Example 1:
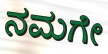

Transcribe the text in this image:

ನಮಗೇ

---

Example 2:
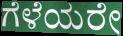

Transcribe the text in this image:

ಗೆಳೆಯರೇ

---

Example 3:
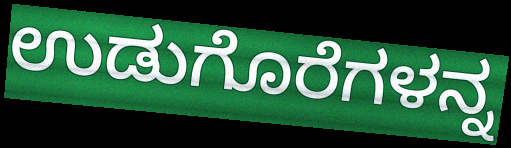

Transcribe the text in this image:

ಉಡುಗೊರೆಗಳನ್ನ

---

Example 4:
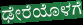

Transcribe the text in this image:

ಢೇರೆಯೊಳಗೆ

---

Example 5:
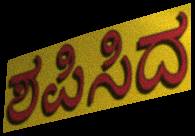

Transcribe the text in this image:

ಶಪಿಸಿದ